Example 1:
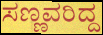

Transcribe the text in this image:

ಸಣ್ಣವರಿದ್ದ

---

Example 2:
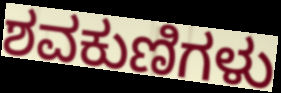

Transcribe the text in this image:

ಶವಕುಣಿಗಳು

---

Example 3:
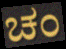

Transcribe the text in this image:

ಚಂ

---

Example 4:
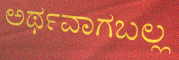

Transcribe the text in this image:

ಅರ್ಥವಾಗಬಲ್ಲ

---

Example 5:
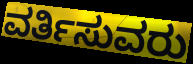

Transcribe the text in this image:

ವರ್ತಿಸುವರು